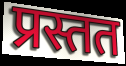
प्रस्तत